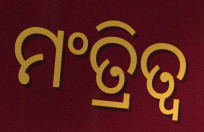
ମଂତ୍ରିତ୍ୱ